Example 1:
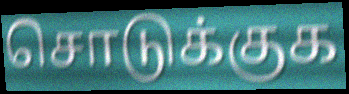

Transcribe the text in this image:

சொடுக்குக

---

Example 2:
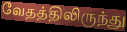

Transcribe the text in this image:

வேதத்திலிருந்து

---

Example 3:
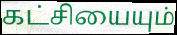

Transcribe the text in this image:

கட்சியையும்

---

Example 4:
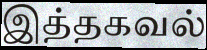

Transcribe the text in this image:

இத்தகவல்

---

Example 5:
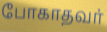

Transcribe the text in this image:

போகாதவர்